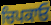
ਚਿਪਕਾਓ